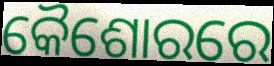
କୈଶୋରରେ